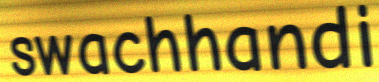
swachhandi